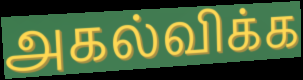
அகல்விக்க